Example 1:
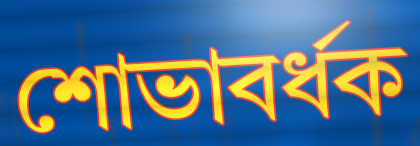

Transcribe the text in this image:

শোভাবর্ধক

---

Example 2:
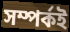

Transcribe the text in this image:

সম্পর্কই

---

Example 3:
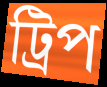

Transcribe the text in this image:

ট্রিপ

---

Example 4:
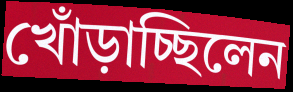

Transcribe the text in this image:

খোঁড়াচ্ছিলেন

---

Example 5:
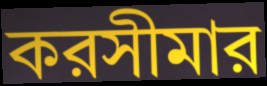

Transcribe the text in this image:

করসীমার